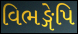
વિભઙ્ગેપિ